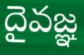
దైవజ్ఞ